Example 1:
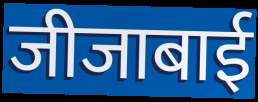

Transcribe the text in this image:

जीजाबाई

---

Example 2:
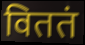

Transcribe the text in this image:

विततं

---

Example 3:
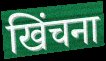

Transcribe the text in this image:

खिंचना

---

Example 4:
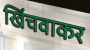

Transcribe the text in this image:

खिंचवाकर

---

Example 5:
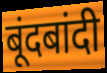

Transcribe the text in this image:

बूंदबांदी